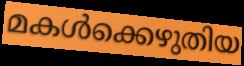
മകൾക്കെഴുതിയ